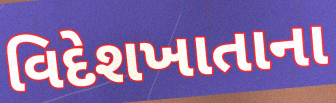
વિદેશખાતાના